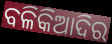
ବଳିକିଆଦିର